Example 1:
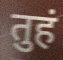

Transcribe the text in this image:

तुहं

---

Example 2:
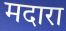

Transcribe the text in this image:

मदारा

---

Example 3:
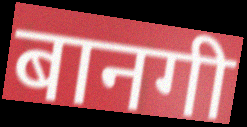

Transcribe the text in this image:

बानगी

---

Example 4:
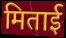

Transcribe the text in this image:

मिताई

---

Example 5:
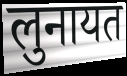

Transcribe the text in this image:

लुनायत